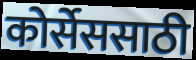
कोर्सेससाठी